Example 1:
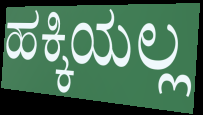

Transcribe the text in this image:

ಹಕ್ಕಿಯಲ್ಲ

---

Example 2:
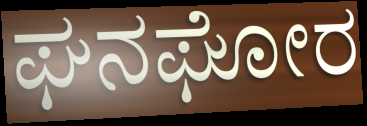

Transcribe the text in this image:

ಘನಘೋರ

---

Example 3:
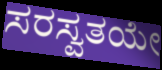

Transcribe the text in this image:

ಸರಸ್ವತಯೇ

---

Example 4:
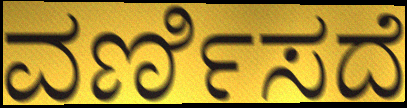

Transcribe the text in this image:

ವರ್ಣಿಸದೆ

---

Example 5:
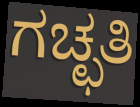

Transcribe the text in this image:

ಗಚ್ಛತಿ